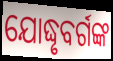
ଯୋଦ୍ଧୃବର୍ଗଙ୍କ